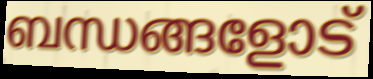
ബന്ധങ്ങളോട്